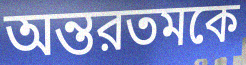
অন্তরতমকে